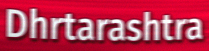
Dhrtarashtra